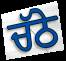
ਚੱਠੇ